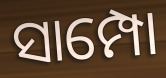
ସାମ୍ପୋ